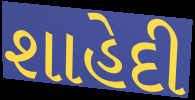
શાહેદી